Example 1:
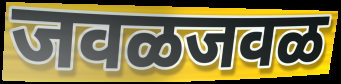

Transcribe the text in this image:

जवळजवळ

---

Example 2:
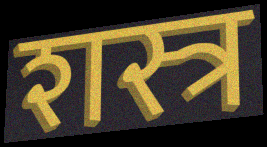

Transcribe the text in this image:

शस्त्र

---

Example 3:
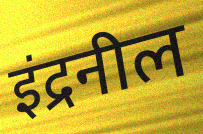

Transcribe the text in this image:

इंद्रनील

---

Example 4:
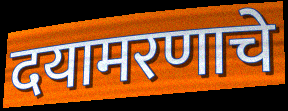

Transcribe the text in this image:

दयामरणाचे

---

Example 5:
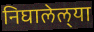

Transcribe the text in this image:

निघालेल्या